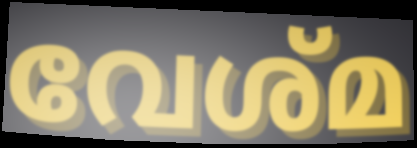
വേശ്മ